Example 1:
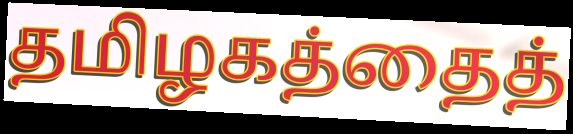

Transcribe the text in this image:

தமிழகத்தைத்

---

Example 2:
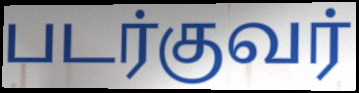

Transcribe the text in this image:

படர்குவர்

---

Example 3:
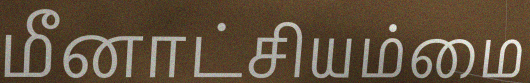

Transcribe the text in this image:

மீனாட்சியம்மை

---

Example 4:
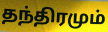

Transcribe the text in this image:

தந்திரமும்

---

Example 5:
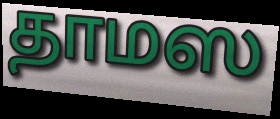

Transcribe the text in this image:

தாமஸ